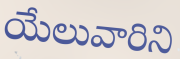
యేలువారిని